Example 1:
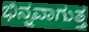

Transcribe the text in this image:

ಭಿನ್ನವಾಗುತ್ತ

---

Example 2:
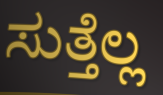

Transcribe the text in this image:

ಸುತ್ತೆಲ್ಲ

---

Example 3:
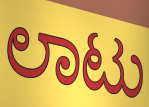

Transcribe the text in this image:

ಲಾಟು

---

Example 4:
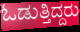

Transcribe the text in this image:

ಓಡುತ್ತಿದ್ದರು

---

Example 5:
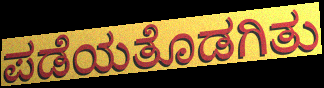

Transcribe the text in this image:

ಪಡೆಯತೊಡಗಿತು